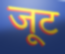
जूट